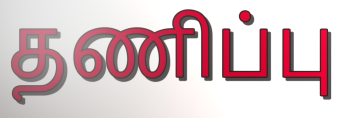
தணிப்பு